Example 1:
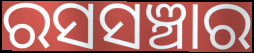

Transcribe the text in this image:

ରସସଞ୍ଚାର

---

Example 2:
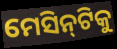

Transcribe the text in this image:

ମେସିନ୍‍ଟିକୁ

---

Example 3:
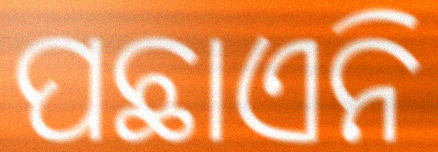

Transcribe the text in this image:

ପଛାଏନି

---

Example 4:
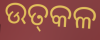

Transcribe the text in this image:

ଉତ୍‌କଳ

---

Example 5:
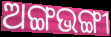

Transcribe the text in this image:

ଅଙ୍ଗଭଙ୍ଗୀ